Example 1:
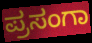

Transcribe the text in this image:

ಪ್ರಸಂಗಾ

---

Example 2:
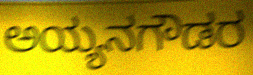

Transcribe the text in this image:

ಅಯ್ಯನಗೌಡರ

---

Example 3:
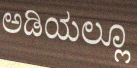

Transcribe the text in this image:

ಅಡಿಯಲ್ಲೂ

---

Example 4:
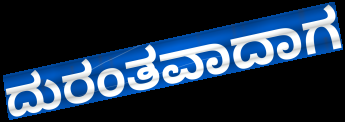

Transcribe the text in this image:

ದುರಂತವಾದಾಗ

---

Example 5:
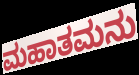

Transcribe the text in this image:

ಮಹಾತಮನು